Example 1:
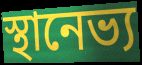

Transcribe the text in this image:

স্থানেভ্য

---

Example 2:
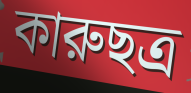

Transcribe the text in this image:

কারুছত্র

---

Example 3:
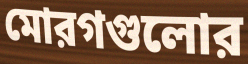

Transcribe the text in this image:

মোরগগুলোর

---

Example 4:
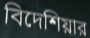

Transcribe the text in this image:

বিদেশিয়ার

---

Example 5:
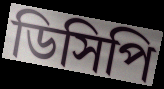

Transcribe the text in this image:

ডিসিপি